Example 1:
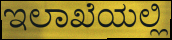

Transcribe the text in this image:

ಇಲಾಖೆಯಲ್ಲಿ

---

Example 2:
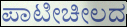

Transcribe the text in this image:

ಪಾಟೀಚೀಲದ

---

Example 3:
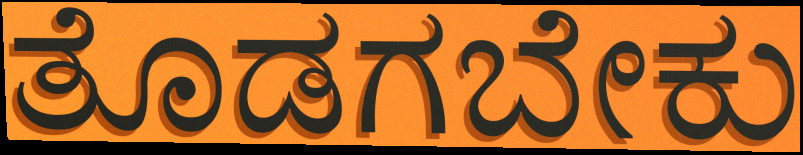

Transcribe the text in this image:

ತೊಡಗಬೇಕು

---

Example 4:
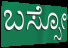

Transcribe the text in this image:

ಬಸ್ಸೋ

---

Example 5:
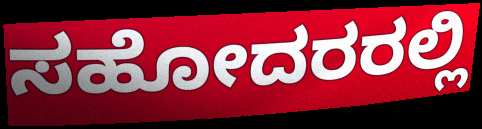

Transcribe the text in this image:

ಸಹೋದರರಲ್ಲಿ